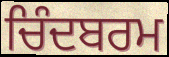
ਚਿੰਦਬਰਮ